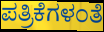
ಪತ್ರಿಕೆಗಳಂತೆ